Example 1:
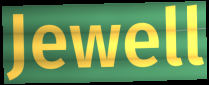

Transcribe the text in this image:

Jewell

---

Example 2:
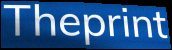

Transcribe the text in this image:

Theprint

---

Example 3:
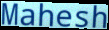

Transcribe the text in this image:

Mahesh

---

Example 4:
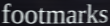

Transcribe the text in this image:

footmarks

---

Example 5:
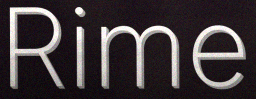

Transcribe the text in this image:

Rime